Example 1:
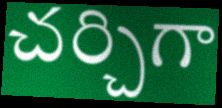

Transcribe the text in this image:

చర్చిగా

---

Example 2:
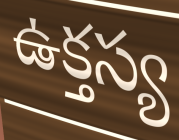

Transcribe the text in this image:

ఉక్తస్య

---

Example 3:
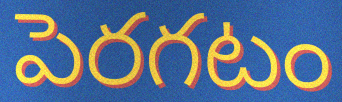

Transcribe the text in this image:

పెరగటం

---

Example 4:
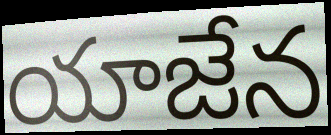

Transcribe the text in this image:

యాజేన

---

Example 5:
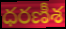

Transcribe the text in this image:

ధరణీశ